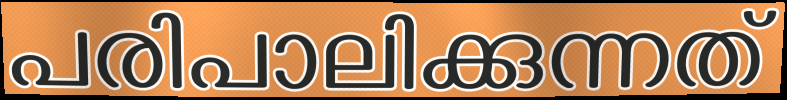
പരിപാലിക്കുന്നത്